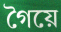
গৈয়ে